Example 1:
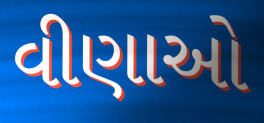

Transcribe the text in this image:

વીણાઓ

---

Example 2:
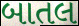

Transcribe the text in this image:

બાતલ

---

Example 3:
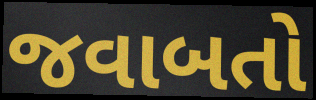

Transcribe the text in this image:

જવાબતો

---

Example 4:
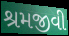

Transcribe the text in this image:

શ્રમજીવી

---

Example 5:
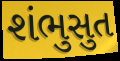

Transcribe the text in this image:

શંભુસુત